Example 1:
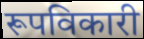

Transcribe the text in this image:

रूपविकारी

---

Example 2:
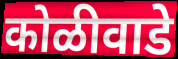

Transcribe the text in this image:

कोळीवाडे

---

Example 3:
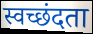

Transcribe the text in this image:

स्वच्छंदता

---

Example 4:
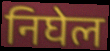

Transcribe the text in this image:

निघेल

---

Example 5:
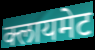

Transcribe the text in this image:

क्लायमेट